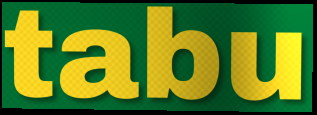
tabu